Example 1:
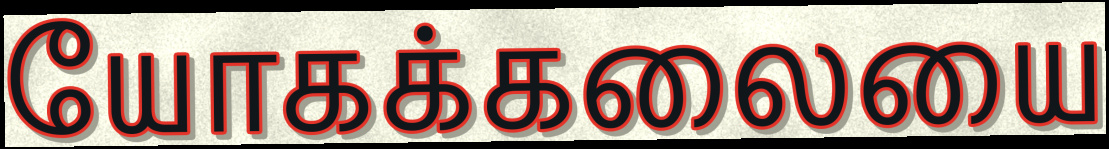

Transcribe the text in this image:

யோகக்கலையை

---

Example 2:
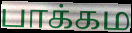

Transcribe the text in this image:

பாக்கம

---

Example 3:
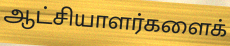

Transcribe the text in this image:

ஆட்சியாளர்களைக்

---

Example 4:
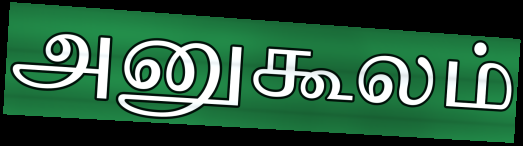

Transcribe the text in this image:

அனுகூலம்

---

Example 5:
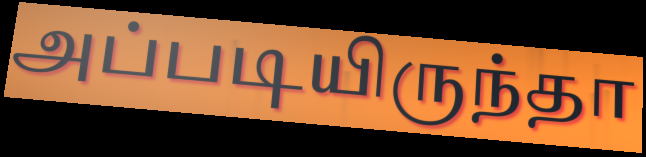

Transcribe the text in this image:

அப்படியிருந்தா